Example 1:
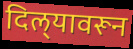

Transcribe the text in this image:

दिल्यावरून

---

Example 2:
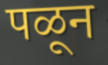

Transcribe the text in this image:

पळून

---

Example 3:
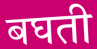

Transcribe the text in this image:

बघती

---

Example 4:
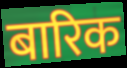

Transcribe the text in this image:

बारिक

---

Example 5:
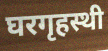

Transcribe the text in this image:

घरगृहस्थी